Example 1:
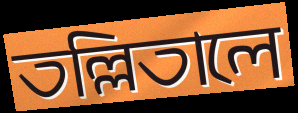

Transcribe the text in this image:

তল্লিতালে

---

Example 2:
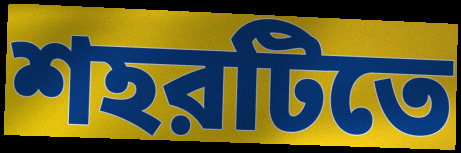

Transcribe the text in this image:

শহরটিতে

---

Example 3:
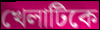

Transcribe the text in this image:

খেলাটিকে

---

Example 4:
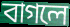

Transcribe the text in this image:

বাগলে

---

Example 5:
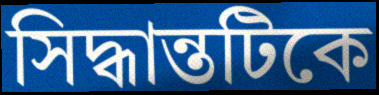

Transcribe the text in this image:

সিদ্ধান্তটিকে